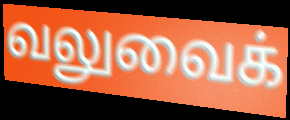
வலுவைக்